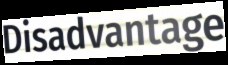
Disadvantage